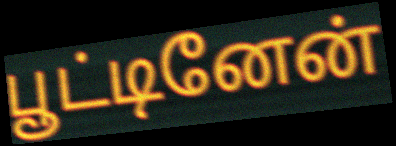
பூட்டினேன்